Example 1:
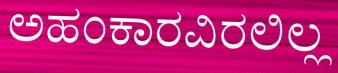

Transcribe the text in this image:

ಅಹಂಕಾರವಿರಲಿಲ್ಲ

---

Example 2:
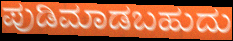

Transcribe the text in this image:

ಪುಡಿಮಾಡಬಹುದು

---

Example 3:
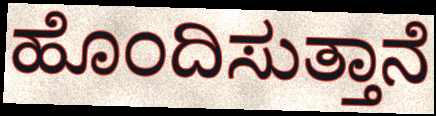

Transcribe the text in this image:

ಹೊಂದಿಸುತ್ತಾನೆ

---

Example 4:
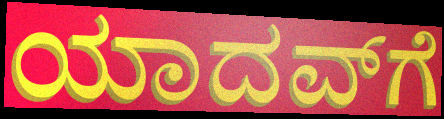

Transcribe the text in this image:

ಯಾದವ್‌ಗೆ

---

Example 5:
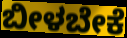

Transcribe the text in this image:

ಬೀಳಬೇಕೆ